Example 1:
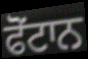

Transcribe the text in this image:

ਫੋਂਟਾਨ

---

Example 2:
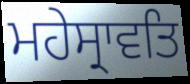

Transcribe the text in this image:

ਮਹੇਸ੍ਰਾਵਤਿ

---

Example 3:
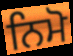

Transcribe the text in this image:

ਨਿਮੋ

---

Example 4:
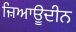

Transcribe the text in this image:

ਜ਼ਿਆਊਦੀਨ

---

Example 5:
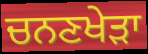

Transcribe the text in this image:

ਚਨਣਖੇੜਾ